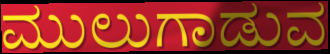
ಮುಲುಗಾಡುವ